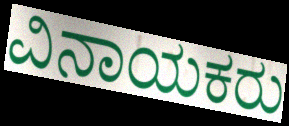
ವಿನಾಯಕರು